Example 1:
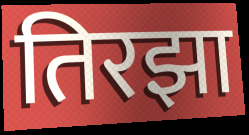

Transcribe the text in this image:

तिरझा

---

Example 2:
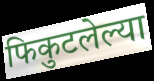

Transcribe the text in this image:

फिकुटलेल्या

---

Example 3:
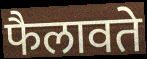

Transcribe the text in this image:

फैलावते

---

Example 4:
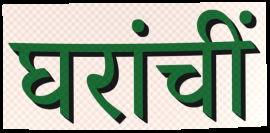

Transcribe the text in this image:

घरांचीं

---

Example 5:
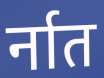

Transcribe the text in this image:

र्नात